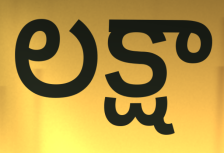
లక్షా